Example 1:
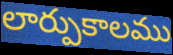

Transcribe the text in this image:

లార్పుకాలము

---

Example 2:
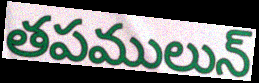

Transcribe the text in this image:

తపములున్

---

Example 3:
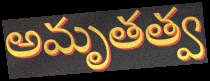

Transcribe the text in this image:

అమృతత్వ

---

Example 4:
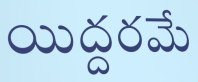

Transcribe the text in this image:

యిద్దరమే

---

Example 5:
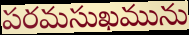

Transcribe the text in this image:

పరమసుఖమును